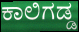
ಕಾಲಿಗಡ್ಡ